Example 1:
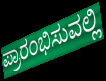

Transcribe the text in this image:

ಪ್ರಾರಂಭಿಸುವಲ್ಲಿ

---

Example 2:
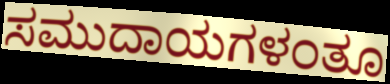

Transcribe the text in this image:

ಸಮುದಾಯಗಳಂತೂ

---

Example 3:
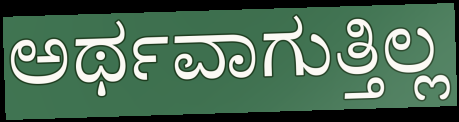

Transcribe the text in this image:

ಅರ್ಥವಾಗುತ್ತಿಲ್ಲ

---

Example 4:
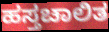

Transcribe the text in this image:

ಹಸ್ತಚಾಲಿತ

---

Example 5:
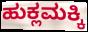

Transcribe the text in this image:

ಹುಕ್ಲಮಕ್ಕಿ